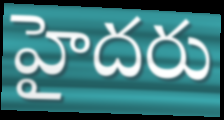
హైదరు